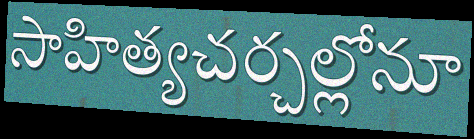
సాహిత్యచర్చల్లోనూ